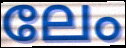
ലേം